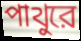
পাথুরে